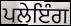
ਪਲੇਇੰਗ